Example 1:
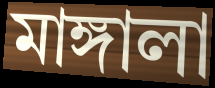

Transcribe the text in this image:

মাঙ্গালা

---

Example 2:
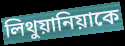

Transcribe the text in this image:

লিথুয়ানিয়াকে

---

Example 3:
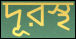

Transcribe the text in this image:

দূরস্থ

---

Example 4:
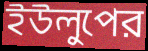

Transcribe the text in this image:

ইউলুপের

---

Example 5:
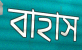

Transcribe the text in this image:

বাহাস